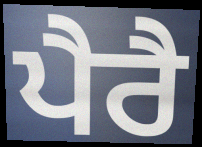
ਪੈਰੈ